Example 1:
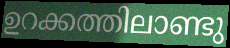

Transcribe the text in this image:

ഉറക്കത്തിലാണ്ടു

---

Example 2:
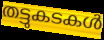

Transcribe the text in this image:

തട്ടുകടകൾ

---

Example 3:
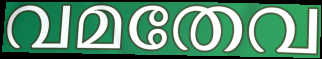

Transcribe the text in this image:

വമതേവ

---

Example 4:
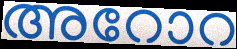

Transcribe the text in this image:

അറോറ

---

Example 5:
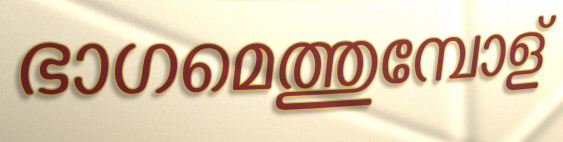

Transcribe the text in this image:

ഭാഗമെത്തുമ്പോള്